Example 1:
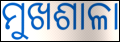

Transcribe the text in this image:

ମୁଖଶାଳା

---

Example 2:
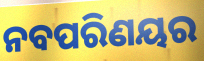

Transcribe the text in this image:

ନବପରିଣୟର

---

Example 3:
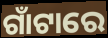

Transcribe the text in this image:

ଗାଁଟାରେ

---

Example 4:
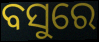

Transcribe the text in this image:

ବସୁରେ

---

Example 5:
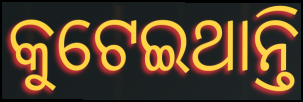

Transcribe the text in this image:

କୁଟେଇଥାନ୍ତି